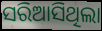
ସରିଆସିଥିଲା